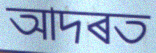
আদৰত